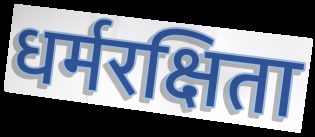
धर्मरक्षिता